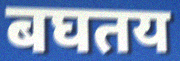
बघतय